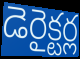
డెరైక్టర్ల